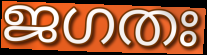
ജഗതഃ